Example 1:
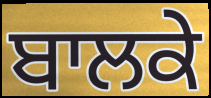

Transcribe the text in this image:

ਬਾਲਕੇ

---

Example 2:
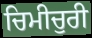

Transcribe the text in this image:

ਚਿਮੀਚੁਰੀ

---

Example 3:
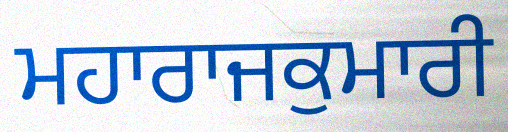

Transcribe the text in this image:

ਮਹਾਰਾਜਕੁਮਾਰੀ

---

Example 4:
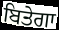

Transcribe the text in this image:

ਬਿਤੇਗਾ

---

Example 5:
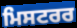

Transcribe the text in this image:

ਮਿਸਟਰਰ